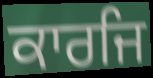
ਕਾਰਜਿ